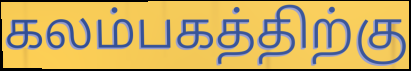
கலம்பகத்திற்கு